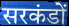
सरकंडों